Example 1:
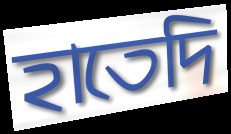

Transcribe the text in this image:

হাতেদি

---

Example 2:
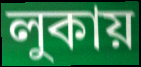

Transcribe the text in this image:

লুকায়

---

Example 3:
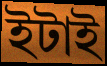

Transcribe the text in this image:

ইটাই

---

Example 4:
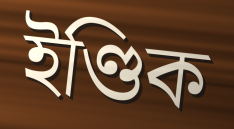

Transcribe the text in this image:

ইণ্ডিক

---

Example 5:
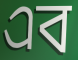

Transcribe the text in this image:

এব